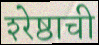
श्रेष्ठाची